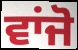
ਵਾਂਜੋ